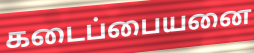
கடைப்பையனை